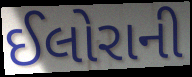
ઈલોરાની